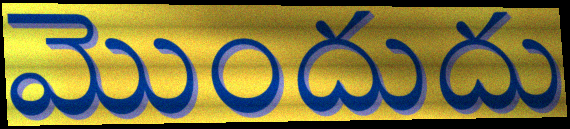
మొందుదు